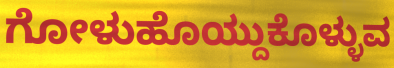
ಗೋಳುಹೊಯ್ದುಕೊಳ್ಳುವ